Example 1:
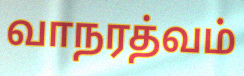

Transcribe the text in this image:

வாநரத்வம்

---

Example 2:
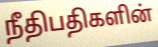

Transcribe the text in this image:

நீதிபதிகளின்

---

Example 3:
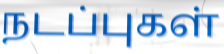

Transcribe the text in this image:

நடப்புகள்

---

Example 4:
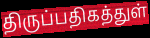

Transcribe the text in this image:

திருப்பதிகத்துள்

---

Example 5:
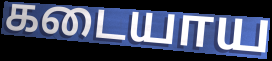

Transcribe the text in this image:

கடையாய